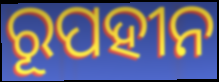
ରୂପହୀନ